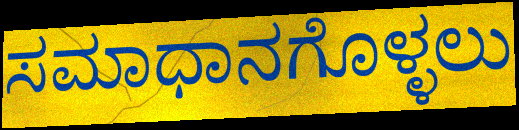
ಸಮಾಧಾನಗೊಳ್ಳಲು